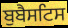
ਬੁਬੈਸਟਿਸ